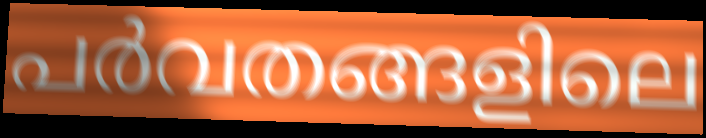
പർവതങ്ങളിലെ